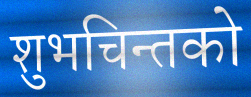
शुभचिन्तको